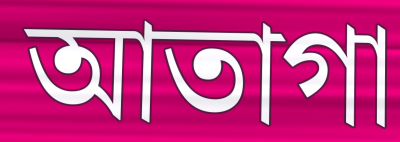
আতাগা